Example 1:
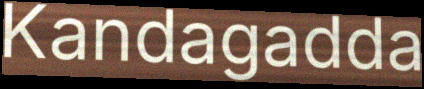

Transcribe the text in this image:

Kandagadda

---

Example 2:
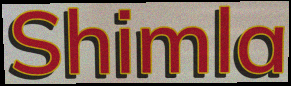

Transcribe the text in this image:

Shimla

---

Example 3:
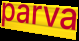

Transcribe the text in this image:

parva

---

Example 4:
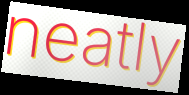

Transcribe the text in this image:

neatly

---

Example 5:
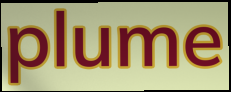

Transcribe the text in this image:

plume